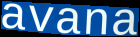
avana